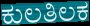
ಕುಲತಿಲಕ